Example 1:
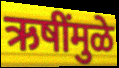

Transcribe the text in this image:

ऋषींमुळे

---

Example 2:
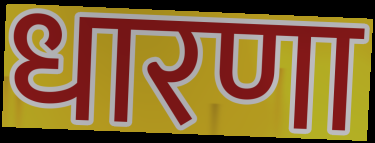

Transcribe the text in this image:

धारणा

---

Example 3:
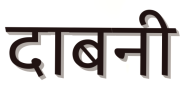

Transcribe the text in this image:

दाबनी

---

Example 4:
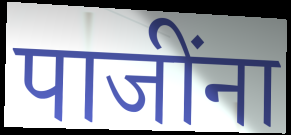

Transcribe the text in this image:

पाजींना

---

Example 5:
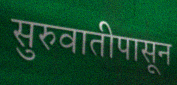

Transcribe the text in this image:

सुरुवातीपासून